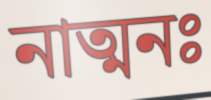
নাত্মনঃ